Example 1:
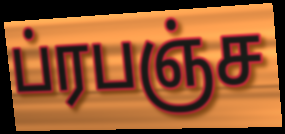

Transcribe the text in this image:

ப்ரபஞ்ச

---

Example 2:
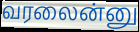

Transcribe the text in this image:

வரலைன்னு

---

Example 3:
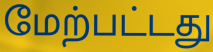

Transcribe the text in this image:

மேற்பட்டது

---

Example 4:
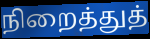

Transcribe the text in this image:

நிறைத்துத்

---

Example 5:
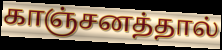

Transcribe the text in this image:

காஞ்சனத்தால்